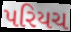
પરિયચ